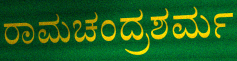
ರಾಮಚಂದ್ರಶರ್ಮ